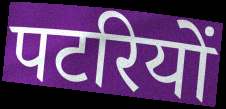
पटरियों